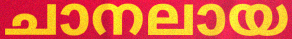
ചാനലായ